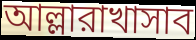
আল্লারাখাসাব